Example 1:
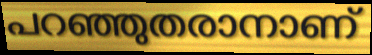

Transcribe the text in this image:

പറഞ്ഞുതരാനാണ്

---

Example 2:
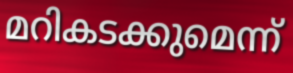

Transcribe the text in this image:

മറികടക്കുമെന്ന്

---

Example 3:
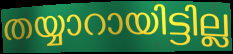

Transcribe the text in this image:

തയ്യാറായിട്ടില്ല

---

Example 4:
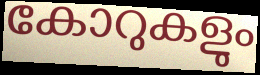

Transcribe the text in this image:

കോറുകളും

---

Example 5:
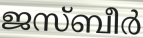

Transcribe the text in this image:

ജസ്ബീർ